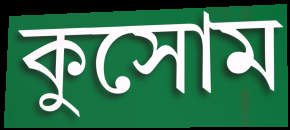
কুসোম